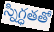
స్నిగ్ధతతో